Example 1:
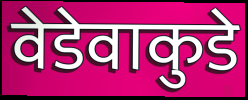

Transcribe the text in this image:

वेडेवाकुडे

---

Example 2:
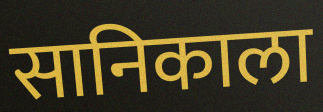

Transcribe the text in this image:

सानिकाला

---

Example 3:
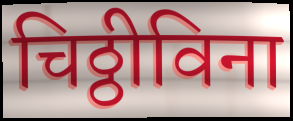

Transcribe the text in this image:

चिठ्ठीविना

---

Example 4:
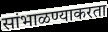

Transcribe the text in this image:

सांभाळण्याकरता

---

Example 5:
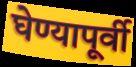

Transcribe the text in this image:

घेण्यापूर्वी